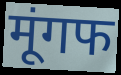
मूंगफ